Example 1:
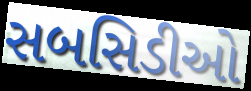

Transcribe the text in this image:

સબસિડીઓ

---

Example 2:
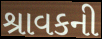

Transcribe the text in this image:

શ્રાવકની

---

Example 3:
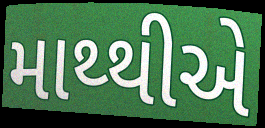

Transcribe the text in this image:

માથ્થીએ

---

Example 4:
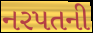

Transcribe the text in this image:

નરપતની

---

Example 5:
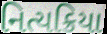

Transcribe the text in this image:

નિત્યક્રિયા